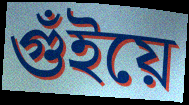
গুঁইয়ে